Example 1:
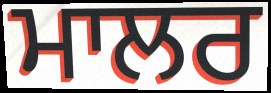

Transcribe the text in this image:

ਮਾਲਰ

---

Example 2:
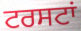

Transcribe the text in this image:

ਟਰਸਟਾਂ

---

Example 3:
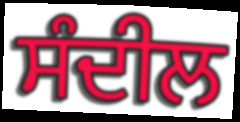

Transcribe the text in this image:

ਸੰਦੀਲ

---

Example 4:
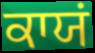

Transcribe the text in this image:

ਕਾਯਂ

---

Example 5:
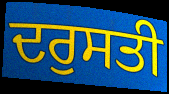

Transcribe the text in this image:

ਦਰੁਸਤੀ